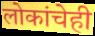
लोकांचेही